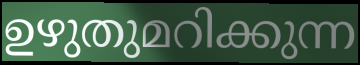
ഉഴുതുമറിക്കുന്ന